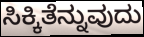
ಸಿಕ್ಕಿತೆನ್ನುವುದು